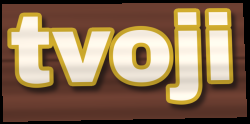
tvoji